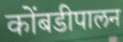
कोंबडीपालन